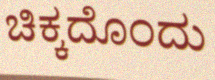
ಚಿಕ್ಕದೊಂದು